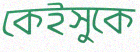
কেইসুকে